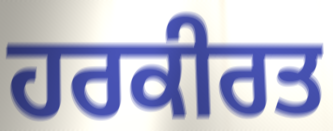
ਹਰਕੀਰਤ